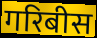
गरिबीस